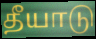
தீயாடு